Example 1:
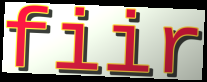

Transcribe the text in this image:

fiir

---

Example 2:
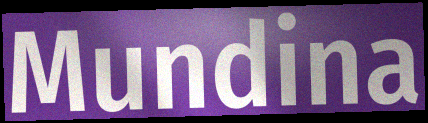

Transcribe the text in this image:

Mundina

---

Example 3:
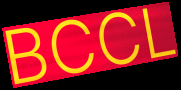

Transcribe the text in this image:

BCCL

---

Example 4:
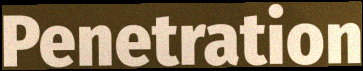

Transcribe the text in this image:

Penetration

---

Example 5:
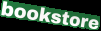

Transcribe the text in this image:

bookstore